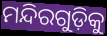
ମନ୍ଦିରଗୁଡ଼ିକୁ